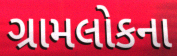
ગ્રામલોકના